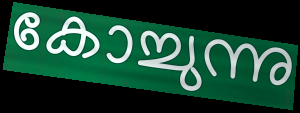
കോച്ചുന്നു